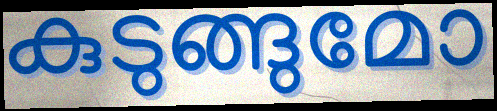
കുടുങ്ങുമോ